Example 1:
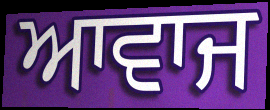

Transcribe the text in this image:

ਆਵਾਜ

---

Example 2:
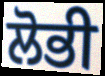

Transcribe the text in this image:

ਲੋਭੀ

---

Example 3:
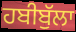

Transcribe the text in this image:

ਹਬੀਬੁੱਲਾ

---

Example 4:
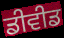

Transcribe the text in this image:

ਡੀਵੀਡ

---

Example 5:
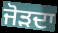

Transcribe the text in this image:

ਜੋੜਦਾ